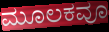
ಮೂಲಕವೂ